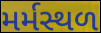
મર્મસ્થળ